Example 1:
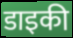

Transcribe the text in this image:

डाइकी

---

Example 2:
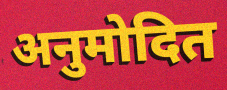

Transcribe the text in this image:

अनुमोदित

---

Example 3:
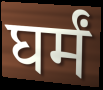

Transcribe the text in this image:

घर्मं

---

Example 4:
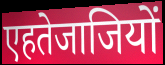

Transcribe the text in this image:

एहतेजाजियों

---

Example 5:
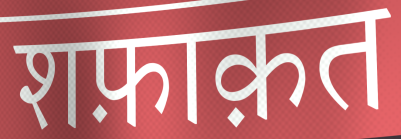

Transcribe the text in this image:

शफ़ाक़त